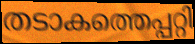
തടാകത്തെപ്പറ്റി